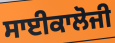
ਸਾਈਕਾਲੋਜੀ